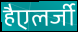
हैएलर्जी